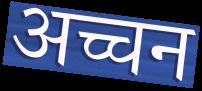
अच्चन